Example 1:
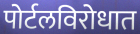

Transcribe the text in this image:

पोर्टलविरोधात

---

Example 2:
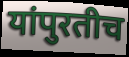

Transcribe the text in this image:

यांपुरतीच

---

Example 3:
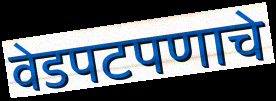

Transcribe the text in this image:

वेडपटपणाचे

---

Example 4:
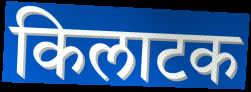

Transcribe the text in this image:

किलाटक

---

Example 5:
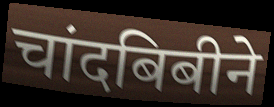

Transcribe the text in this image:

चांदबिबीने